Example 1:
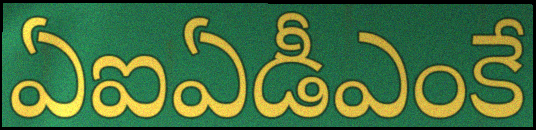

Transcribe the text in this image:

ఏఐఏడీఎంకే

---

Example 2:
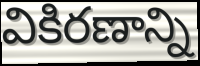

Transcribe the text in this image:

వికిరణాన్ని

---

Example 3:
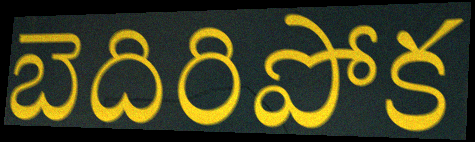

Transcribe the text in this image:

బెదిరిపోక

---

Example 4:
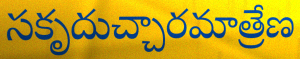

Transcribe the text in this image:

సకృదుచ్చారమాత్రేణ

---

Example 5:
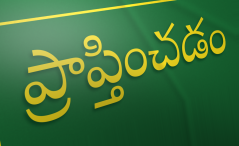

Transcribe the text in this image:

ప్రాప్తించడం